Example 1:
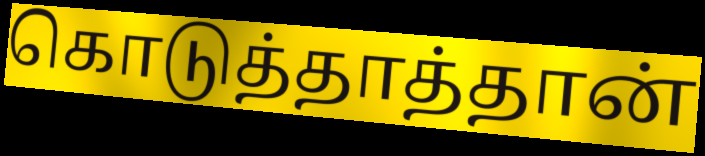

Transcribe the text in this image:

கொடுத்தாத்தான்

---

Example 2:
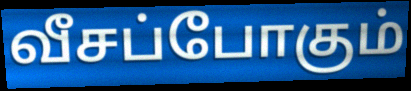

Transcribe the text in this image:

வீசப்போகும்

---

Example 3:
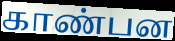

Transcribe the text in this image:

காண்பன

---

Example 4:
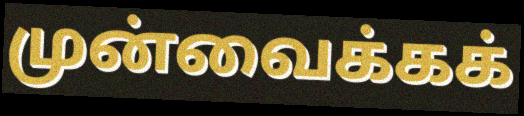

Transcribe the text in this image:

முன்வைக்கக்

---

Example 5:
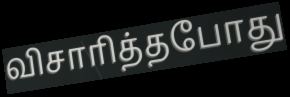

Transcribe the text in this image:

விசாரித்தபோது